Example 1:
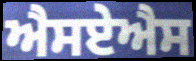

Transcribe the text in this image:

ਐਸਏਐਸ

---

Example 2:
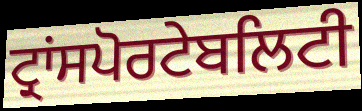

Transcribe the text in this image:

ਟ੍ਰਾਂਸਪੋਰਟੇਬਲਿਟੀ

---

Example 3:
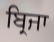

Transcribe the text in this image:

ਬ੍ਰਿਜਾ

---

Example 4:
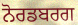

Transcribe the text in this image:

ਨੋਰਡਬਰਗ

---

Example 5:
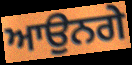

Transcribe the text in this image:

ਆਉਨਗੇ